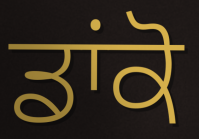
ਡਾਂਕੋ